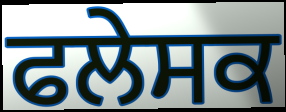
ਫਲੇਸਕ